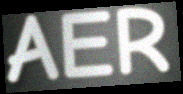
AER